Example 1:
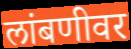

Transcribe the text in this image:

लांबणीवर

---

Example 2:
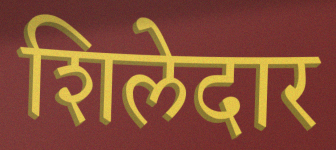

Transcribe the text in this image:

शिलेदार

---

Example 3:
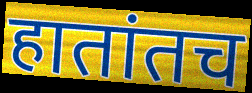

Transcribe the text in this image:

हातांतच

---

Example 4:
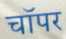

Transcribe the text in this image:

चॉपर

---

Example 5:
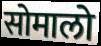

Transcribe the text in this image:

सोमालो